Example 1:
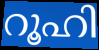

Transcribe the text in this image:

റൂഹി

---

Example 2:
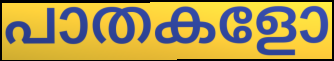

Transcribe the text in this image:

പാതകളോ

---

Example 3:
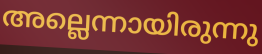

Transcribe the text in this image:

അല്ലെന്നായിരുന്നു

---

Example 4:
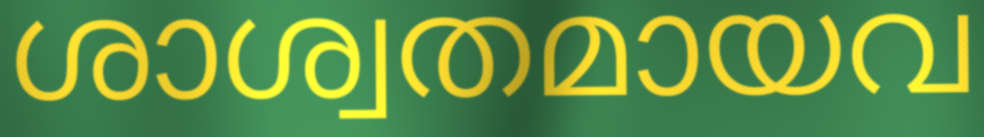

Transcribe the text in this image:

ശാശ്വതമായവ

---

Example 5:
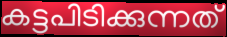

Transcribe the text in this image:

കട്ടപിടിക്കുന്നത്